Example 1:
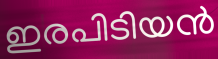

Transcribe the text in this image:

ഇരപിടിയൻ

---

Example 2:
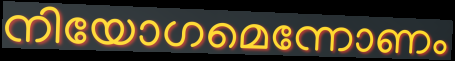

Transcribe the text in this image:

നിയോഗമെന്നോണം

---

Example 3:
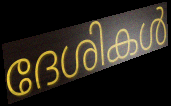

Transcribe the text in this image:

ദേശികൾ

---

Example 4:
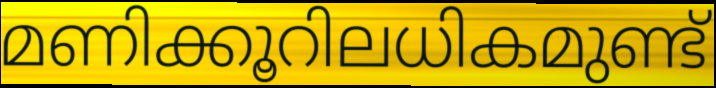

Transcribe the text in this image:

മണിക്കൂറിലധികമുണ്ട്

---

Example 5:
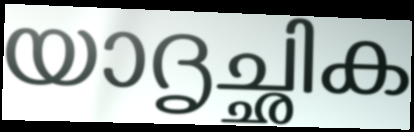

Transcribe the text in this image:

യാദൃച്ഛിക